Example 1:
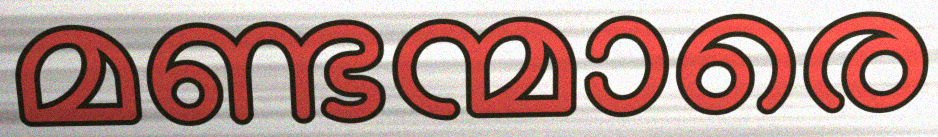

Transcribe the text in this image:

മണ്ടന്മാരെ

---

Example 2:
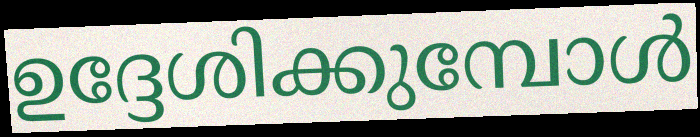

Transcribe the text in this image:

ഉദ്ദേശിക്കുമ്പോൾ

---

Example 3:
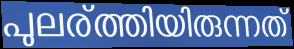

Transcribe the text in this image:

പുലര്ത്തിയിരുന്നത്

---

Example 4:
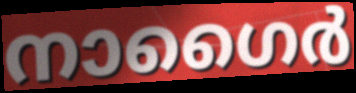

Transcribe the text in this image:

നാഗൈർ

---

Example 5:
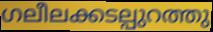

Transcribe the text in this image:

ഗലീലക്കടല്പുറത്തു